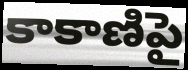
కాకాణిపై